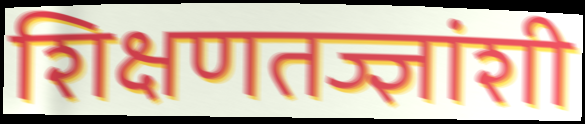
शिक्षणतज्ज्ञांशी